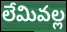
లేమివల్ల